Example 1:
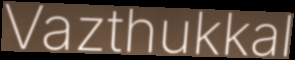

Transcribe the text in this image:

Vazthukkal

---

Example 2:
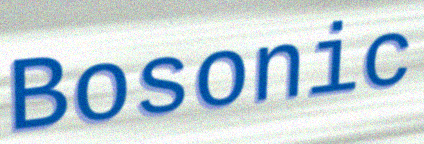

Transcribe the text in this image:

Bosonic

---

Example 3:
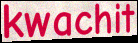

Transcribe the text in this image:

kwachit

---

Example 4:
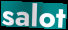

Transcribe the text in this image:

salot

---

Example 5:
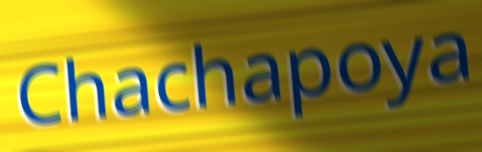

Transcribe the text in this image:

Chachapoya